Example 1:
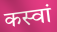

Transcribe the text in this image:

कस्‍वां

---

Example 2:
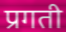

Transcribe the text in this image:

प्रगती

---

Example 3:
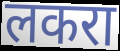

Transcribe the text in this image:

लकरा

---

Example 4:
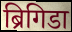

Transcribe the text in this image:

ब्रिगिडा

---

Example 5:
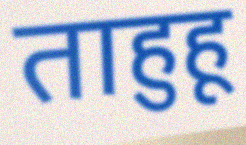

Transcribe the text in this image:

ताहुहू